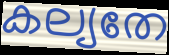
കല്യതേ